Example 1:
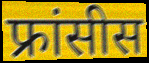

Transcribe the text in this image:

फ्रांसीस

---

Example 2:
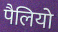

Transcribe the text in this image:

पैलियो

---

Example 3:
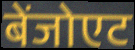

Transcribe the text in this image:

बेंजोएट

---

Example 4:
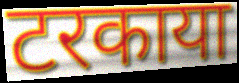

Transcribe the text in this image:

टरकाया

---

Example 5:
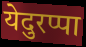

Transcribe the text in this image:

येदुरप्पा